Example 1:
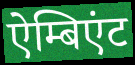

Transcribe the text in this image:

ऐम्बिएंट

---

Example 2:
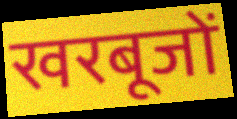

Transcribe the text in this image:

खरबूजों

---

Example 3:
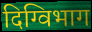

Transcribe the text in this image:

दिग्विभाग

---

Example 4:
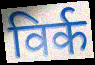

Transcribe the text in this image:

विर्क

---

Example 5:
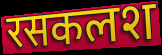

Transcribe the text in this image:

रसकलश